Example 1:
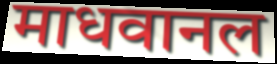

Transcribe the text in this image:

माधवानल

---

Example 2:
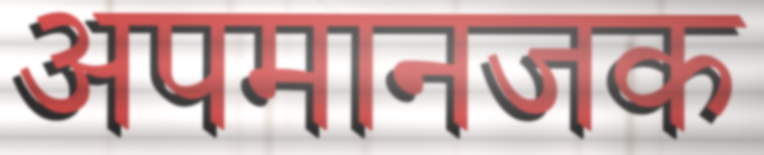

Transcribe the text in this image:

अपमानजक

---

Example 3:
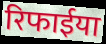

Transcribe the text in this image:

रिफाईया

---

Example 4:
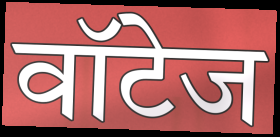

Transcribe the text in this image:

वॉटेज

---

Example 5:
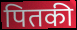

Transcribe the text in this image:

पितकी